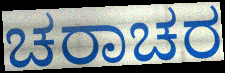
ಚರಾಚರ